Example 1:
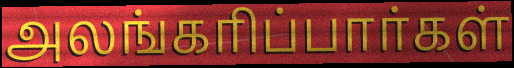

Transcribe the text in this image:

அலங்கரிப்பார்கள்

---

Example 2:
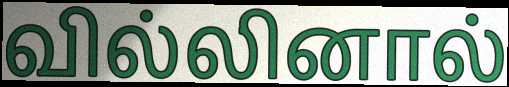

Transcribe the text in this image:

வில்லினால்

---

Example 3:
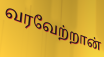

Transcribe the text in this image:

வரவேற்றான்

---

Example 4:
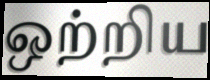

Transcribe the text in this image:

ஒற்றிய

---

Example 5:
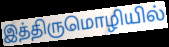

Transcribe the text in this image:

இத்திருமொழியில்